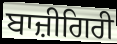
ਬਾਜ਼ੀਗਿਰੀ